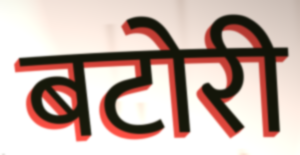
बटोरी